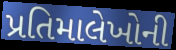
પ્રતિમાલેખોની